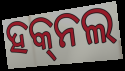
ହକ୍‌ନଲ